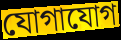
যোগাযোগ